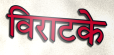
विराटके